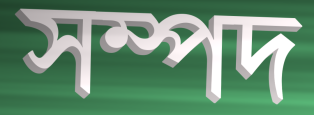
সম্পদ